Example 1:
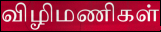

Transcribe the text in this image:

விழிமணிகள்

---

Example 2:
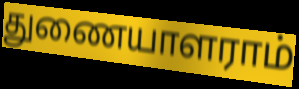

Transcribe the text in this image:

துணையாளராம்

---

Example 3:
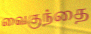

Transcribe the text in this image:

வைகுந்தை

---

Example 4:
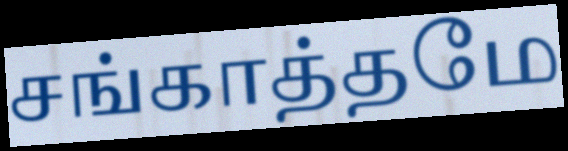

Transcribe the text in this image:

சங்காத்தமே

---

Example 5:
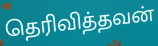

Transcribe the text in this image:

தெரிவித்தவன்